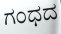
ಗಂಧದ